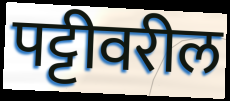
पट्टीवरील